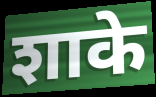
शाके